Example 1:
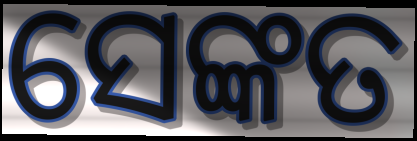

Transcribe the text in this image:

ସେଙ୍କତ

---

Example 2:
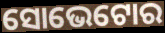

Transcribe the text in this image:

ସୋଭେଟୋର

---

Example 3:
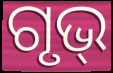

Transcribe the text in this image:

ଗୃଭ୍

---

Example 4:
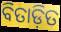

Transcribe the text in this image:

ବିତାଡ଼ିତ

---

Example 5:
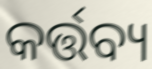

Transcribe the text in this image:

କର୍ତ୍ତବ୍ୟ